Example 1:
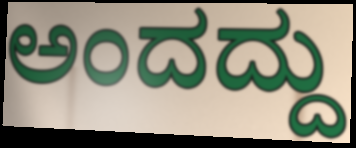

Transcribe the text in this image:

ಅಂದದ್ದು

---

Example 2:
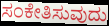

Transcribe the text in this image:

ಸಂಕೇತಿಸುವುದು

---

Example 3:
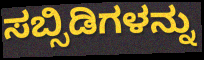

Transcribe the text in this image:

ಸಬ್ಸಿಡಿಗಳನ್ನು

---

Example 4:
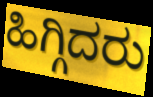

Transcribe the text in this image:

ಹಿಗ್ಗಿದರು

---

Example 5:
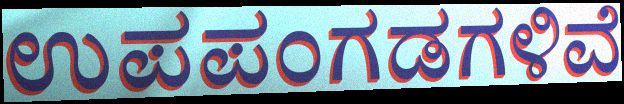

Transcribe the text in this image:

ಉಪಪಂಗಡಗಳಿವೆ